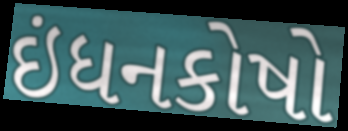
ઇંધનકોષો